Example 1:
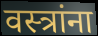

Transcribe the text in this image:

वस्त्रांना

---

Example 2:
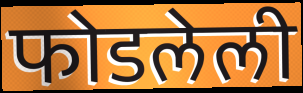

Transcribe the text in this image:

फोडलेली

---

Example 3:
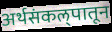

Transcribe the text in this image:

अर्थसंकल्पातून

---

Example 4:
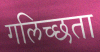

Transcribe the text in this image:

गलिच्छता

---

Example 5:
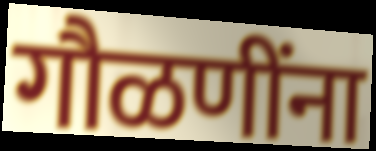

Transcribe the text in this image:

गौळणींना